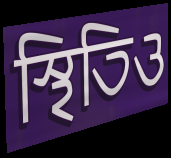
স্থিতিও